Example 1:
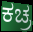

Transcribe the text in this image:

ಕಚ್ರ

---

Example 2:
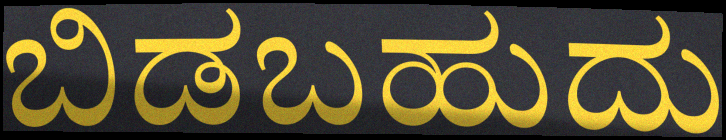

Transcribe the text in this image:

ಬಿಡಬಹುದು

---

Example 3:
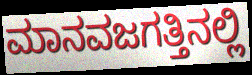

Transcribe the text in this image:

ಮಾನವಜಗತ್ತಿನಲ್ಲಿ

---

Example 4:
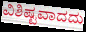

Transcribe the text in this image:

ವಿಶಿಷ್ಟವಾದದು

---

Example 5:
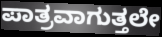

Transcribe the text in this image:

ಪಾತ್ರವಾಗುತ್ತಲೇ